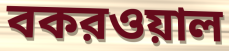
বকরওয়াল